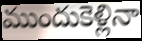
ముందుకెళ్లినా